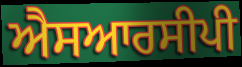
ਐਸਆਰਸੀਪੀ